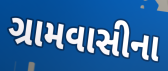
ગ્રામવાસીના